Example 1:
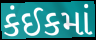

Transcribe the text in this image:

કંઈકમાં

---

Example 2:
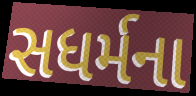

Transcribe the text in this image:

સધર્મના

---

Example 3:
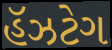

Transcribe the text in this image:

હૅઝટેગ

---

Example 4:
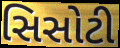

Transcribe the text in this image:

સિસોટી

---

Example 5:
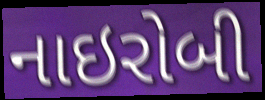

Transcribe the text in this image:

નાઇરોબી